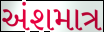
અંશમાત્ર